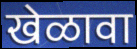
खेळावा